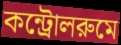
কন্ট্রোলরুমে